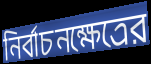
নির্বাচনক্ষেত্রের